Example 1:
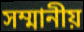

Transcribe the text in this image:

সম্মানীয়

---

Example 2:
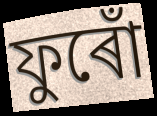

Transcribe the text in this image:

ফুৰোঁ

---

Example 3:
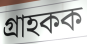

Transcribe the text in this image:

গ্ৰাহকক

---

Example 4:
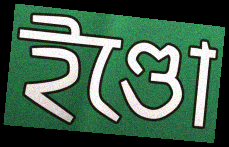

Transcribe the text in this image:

ইণ্ডো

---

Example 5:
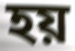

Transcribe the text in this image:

হয়